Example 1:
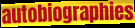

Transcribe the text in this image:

autobiographies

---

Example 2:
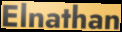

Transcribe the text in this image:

Elnathan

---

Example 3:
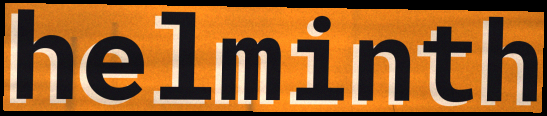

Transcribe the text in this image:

helminth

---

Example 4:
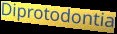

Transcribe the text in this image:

Diprotodontia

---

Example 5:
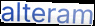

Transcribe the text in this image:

alteram